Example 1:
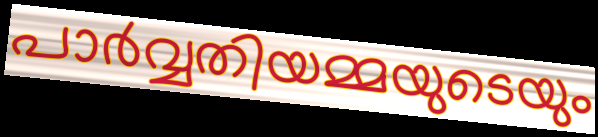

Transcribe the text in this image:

പാർവ്വതിയമ്മയുടെയും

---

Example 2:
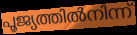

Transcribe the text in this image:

പൂജ്യത്തിൽനിന്ന്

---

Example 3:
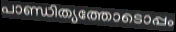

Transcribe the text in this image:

പാണ്ഡിത്യത്തോടൊപ്പം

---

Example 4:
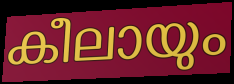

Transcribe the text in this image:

കീലായും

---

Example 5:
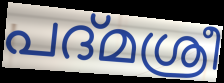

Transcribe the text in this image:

പദ്മശ്രീ